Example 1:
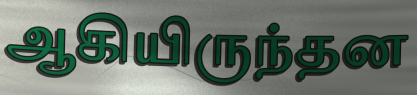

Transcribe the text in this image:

ஆகியிருந்தன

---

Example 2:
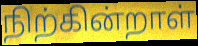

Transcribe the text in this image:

நிற்கின்றாள்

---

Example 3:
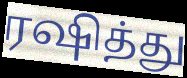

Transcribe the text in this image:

ரஷித்து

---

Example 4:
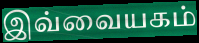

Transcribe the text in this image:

இவ்வையகம்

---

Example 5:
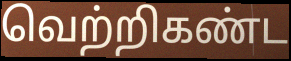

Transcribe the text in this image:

வெற்றிகண்ட